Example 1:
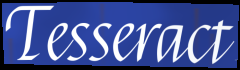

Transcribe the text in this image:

Tesseract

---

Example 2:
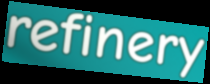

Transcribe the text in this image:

refinery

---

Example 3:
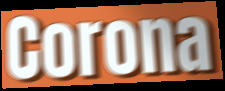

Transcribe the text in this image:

Corona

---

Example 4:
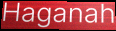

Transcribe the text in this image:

Haganah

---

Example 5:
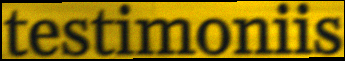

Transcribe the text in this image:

testimoniis